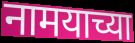
नामयाच्या